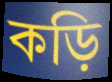
কড়ি